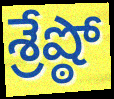
శ్రేష్ఠో